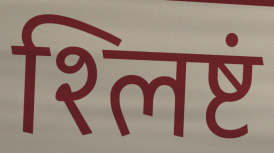
श्लिष्टं